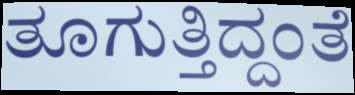
ತೂಗುತ್ತಿದ್ದಂತೆ